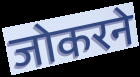
जोकरने